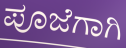
ಪೂಜೆಗಾಗಿ